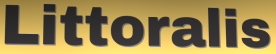
Littoralis